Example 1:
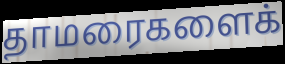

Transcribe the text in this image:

தாமரைகளைக்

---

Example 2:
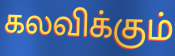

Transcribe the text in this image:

கலவிக்கும்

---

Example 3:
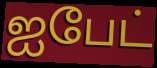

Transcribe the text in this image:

ஐபேட்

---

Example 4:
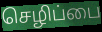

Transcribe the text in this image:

செழிப்பை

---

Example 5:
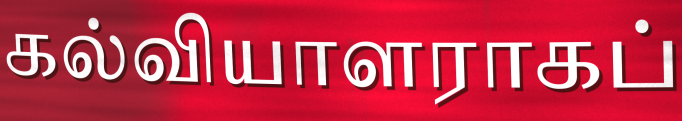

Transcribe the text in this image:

கல்வியாளராகப்